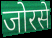
जोरसे